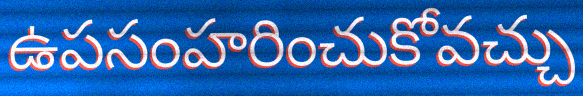
ఉపసంహరించుకోవచ్చు